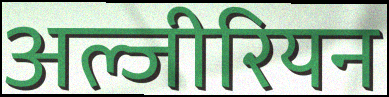
अल्जीरियन